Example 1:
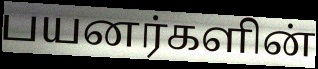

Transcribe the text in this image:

பயனர்களின்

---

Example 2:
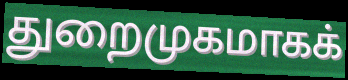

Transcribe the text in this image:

துறைமுகமாகக்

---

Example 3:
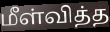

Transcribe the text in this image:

மீள்வித்த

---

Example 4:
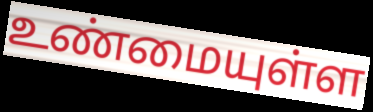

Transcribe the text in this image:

உண்மையுள்ள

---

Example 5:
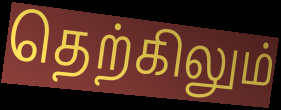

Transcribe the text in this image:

தெற்கிலும்